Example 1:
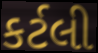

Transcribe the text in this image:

કર્ટલી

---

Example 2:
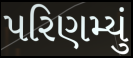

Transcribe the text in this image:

પરિણમ્યું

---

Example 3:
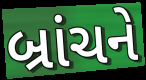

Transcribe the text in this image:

બ્રાંચને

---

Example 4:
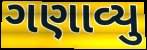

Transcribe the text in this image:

ગણાવ્યુ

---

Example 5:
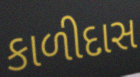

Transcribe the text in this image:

કાળીદાસ